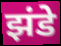
झंडे